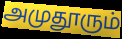
அமுதூரும்